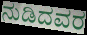
ನುಡಿದವರ